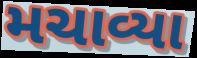
મચાવ્યા